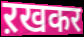
ऱखकर